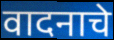
वादनाचे